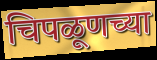
चिपळूणच्या